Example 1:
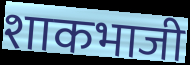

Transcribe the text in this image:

शाकभाजी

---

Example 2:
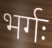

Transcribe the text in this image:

भर्गः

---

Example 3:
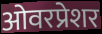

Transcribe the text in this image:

ओवरप्रेशर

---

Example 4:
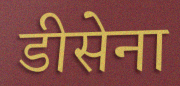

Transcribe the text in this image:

डीसेना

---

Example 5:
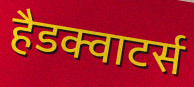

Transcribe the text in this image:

हैडक्वाटर्स